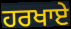
ਹਰਖਾਏ